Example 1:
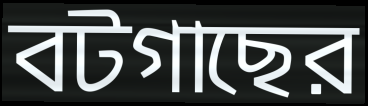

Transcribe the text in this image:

বটগাছের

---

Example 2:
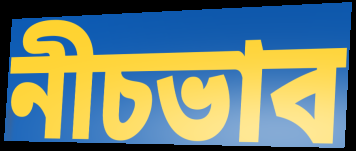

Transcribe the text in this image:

নীচভাব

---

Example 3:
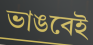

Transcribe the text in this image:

ভাঙবেই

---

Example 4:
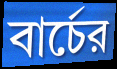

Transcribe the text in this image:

বার্চের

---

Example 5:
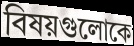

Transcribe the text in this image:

বিষয়গুলোকে